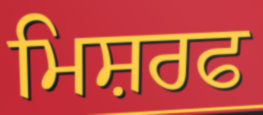
ਮਿਸ਼ਰਫ